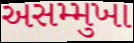
અસમ્મુખા